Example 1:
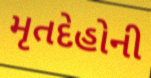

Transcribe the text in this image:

મૃતદેહોની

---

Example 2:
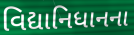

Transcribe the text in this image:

વિદ્યાનિધાનના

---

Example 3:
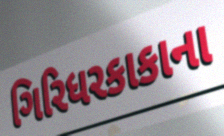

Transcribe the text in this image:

ગિરિધરકાકાના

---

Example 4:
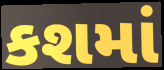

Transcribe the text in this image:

કશમાં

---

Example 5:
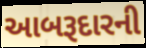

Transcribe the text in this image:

આબરૂદારની